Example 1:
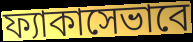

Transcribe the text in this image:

ফ্যাকাসেভাবে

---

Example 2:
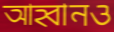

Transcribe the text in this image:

আহ্বানও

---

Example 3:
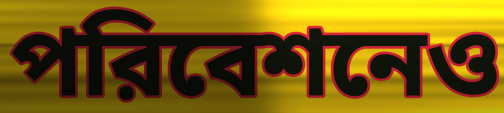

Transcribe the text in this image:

পরিবেশনেও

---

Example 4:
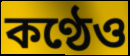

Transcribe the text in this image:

কণ্ঠেও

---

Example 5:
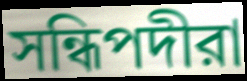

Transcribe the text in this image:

সন্ধিপদীরা